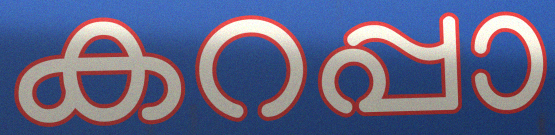
കറപ്പാ